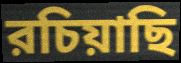
রচিয়াছি